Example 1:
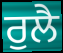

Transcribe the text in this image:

ਰੁਲੈ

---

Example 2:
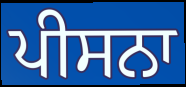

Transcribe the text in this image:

ਪੀਸਨਾ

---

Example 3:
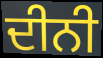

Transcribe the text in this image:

ਦੀਨੀ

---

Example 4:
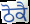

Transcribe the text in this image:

ਠੋਕੈ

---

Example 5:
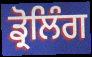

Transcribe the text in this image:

ਡ੍ਰੋਲਿੰਗ